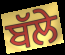
ਬੱਲੇ